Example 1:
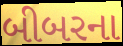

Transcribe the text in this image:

બીબરના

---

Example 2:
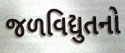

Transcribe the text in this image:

જળવિદ્યુતનો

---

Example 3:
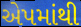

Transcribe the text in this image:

એપમાંથી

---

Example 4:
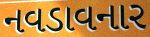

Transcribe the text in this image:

નવડાવનાર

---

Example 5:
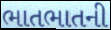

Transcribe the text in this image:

ભાતભાતની